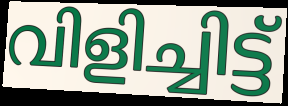
വിളിച്ചിട്ട്